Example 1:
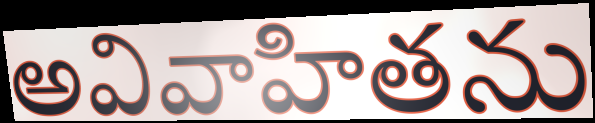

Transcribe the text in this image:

అవివాహితను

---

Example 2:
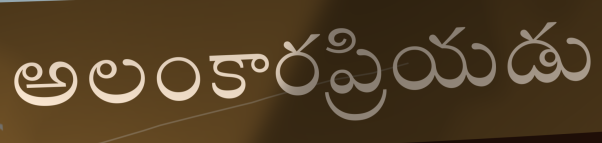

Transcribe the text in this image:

అలంకారప్రియడు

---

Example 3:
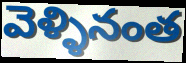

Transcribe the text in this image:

వెళ్ళినంత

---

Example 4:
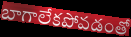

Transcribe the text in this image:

బాగాలేకపోవడంతో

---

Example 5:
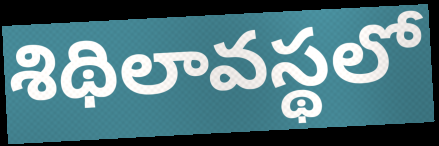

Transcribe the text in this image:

శిథిలావస్థలో